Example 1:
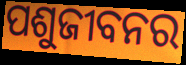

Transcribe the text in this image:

ପଶୁଜୀବନର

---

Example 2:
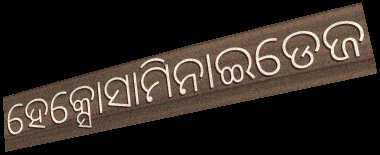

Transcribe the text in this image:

ହେକ୍ସୋସାମିନାଇଡେଜ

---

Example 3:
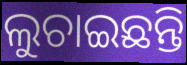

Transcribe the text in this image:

ଲୁଚାଇଛନ୍ତି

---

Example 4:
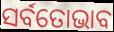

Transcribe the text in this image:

ସର୍ବତୋଭାବ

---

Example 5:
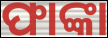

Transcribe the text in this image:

ଫାଙ୍କା